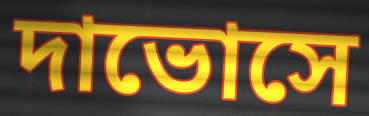
দাভোসে